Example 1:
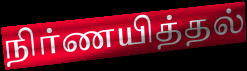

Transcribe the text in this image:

நிர்ணயித்தல்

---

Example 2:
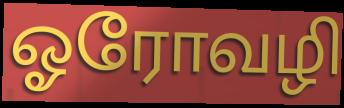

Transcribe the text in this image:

ஓரோவழி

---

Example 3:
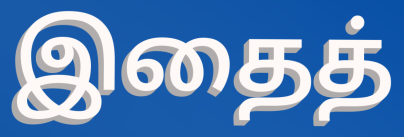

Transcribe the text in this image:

இதைத்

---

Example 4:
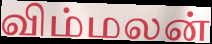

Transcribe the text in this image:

விம்மலன்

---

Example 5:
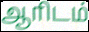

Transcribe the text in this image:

ஆரிடம்